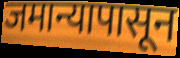
जमान्यापासून